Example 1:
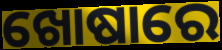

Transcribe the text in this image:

ଖୋଷାରେ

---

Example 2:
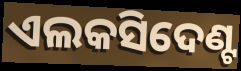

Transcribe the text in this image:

ଏଲକସିଦେଣ୍ଟ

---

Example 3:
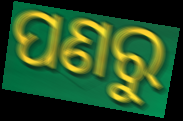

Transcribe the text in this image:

ପଣରୁ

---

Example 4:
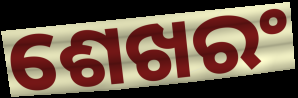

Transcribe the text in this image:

ଶେଖରଂ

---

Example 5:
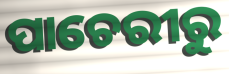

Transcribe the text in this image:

ପାଚେରୀରୁ